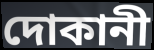
দোকানী